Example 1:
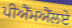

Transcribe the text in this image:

ਪੀਐੱਮਐੱਲਏ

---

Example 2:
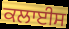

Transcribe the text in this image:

ਕਲਾਈਸ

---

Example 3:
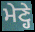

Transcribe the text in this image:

ਮੇਣ੍ਹੇ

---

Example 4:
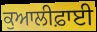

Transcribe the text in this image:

ਕੁਆਲੀਫ਼ਾਈ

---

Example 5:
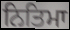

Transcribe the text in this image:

ਨਿਤਿਮਾ